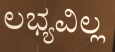
ಲಭ್ಯವಿಲ್ಲ